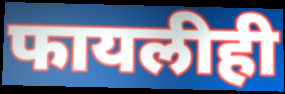
फायलीही